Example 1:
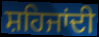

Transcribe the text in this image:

ਸ਼ਹਿਜਾਂਦੀ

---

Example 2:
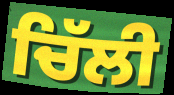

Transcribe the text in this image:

ਚਿੱਲੀ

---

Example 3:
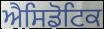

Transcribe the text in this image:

ਐਸਿਡੋਟਿਕ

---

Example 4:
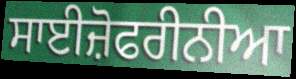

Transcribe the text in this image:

ਸਾਈਜ਼ੋਫਰੀਨੀਆ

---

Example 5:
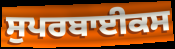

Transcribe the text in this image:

ਸੁਪਰਬਾਈਕਸ